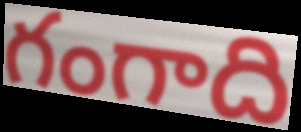
గంగాది